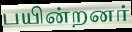
பயின்றனர்